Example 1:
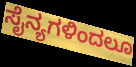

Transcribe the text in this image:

ಸೈನ್ಯಗಳಿಂದಲೂ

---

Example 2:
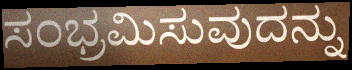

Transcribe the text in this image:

ಸಂಭ್ರಮಿಸುವುದನ್ನು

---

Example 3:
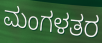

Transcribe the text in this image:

ಮಂಗಳತರ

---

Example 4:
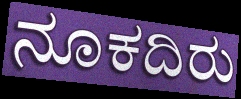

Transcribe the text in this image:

ನೂಕದಿರು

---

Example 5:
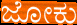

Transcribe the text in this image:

ಜೋಕು